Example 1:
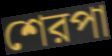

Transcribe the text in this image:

শেরপা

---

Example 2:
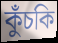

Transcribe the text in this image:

কুঁচকি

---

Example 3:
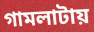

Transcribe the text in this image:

গামলাটায়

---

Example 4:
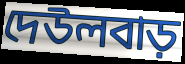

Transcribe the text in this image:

দেউলবাড়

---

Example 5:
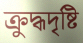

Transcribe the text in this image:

ক্রুদ্ধদৃষ্টি